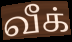
வீக்